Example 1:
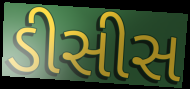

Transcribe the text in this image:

ડીસીસ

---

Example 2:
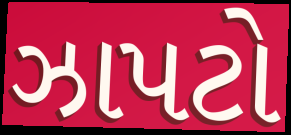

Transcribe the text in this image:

ઝાપટો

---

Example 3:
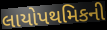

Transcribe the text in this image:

લાયોપથમિકની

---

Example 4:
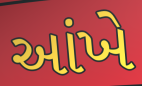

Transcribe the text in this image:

આંખે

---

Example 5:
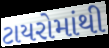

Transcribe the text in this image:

ટાયરોમાંથી